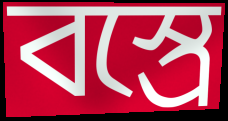
বস্ত্রে